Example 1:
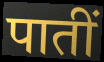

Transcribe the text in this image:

पातीं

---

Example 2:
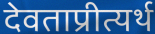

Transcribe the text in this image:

देवताप्रीत्यर्थ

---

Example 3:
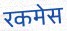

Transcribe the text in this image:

रकमेस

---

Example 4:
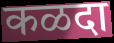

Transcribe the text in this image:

कळदा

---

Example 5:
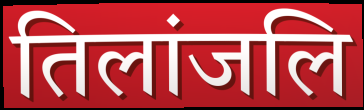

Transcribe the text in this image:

तिलांजलि